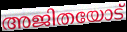
അജിതയോട്